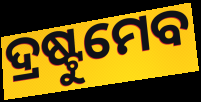
ଦ୍ରଷ୍ଟୁମେବ